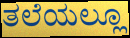
ತಲೆಯಲ್ಲೂ